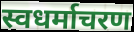
स्वधर्माचरण